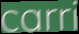
carri